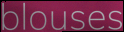
blouses